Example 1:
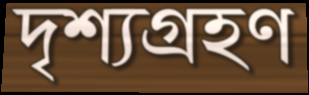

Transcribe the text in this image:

দৃশ্যগ্ৰহণ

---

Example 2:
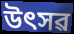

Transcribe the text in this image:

উৎসৱ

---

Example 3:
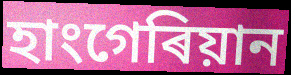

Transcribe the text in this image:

হাংগেৰিয়ান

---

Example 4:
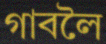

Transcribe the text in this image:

গাবলৈ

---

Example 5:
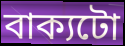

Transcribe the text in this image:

বাক্যটো